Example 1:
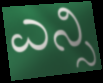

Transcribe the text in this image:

ಎನ್ಸಿ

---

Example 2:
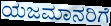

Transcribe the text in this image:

ಯಜಮಾನರಿಗೆ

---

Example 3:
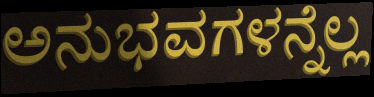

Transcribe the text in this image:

ಅನುಭವಗಳನ್ನೆಲ್ಲ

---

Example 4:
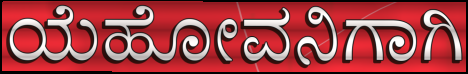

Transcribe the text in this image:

ಯೆಹೋವನಿಗಾಗಿ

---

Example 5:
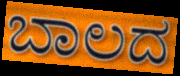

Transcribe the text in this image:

ಬಾಲದ